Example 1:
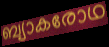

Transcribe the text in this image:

ബ്യാകരോഥ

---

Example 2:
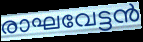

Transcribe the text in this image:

രാഘവേട്ടൻ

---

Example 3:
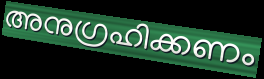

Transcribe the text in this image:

അനുഗ്രഹിക്കണം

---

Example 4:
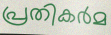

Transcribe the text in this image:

പ്രതികർമ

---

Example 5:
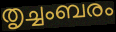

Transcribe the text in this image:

തൃച്ചംബരം